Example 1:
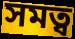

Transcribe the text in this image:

সমত্ব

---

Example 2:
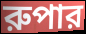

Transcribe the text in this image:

রুপার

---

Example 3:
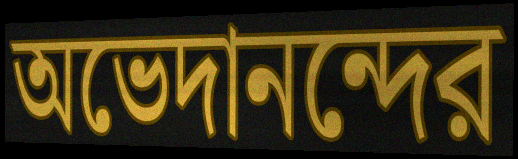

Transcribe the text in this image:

অভেদানন্দের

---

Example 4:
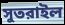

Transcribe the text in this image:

সুতরাইল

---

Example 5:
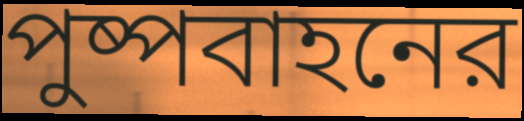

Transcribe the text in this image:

পুষ্পবাহনের